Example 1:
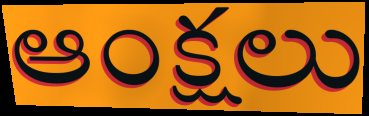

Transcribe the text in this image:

ఆంక్షలు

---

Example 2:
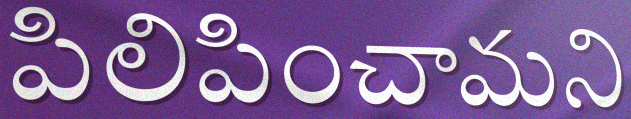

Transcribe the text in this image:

పిలిపించామని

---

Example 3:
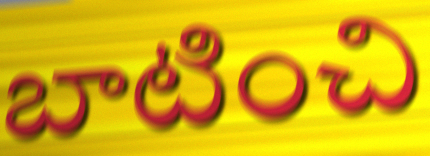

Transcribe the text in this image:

బాటించి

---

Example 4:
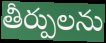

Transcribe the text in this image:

తీర్పులను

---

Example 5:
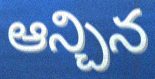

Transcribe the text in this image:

ఆన్చిన